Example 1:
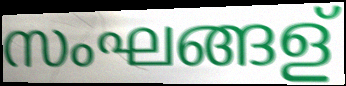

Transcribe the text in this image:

സംഘങ്ങള്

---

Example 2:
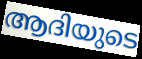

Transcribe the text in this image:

ആദിയുടെ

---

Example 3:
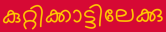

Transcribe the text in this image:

കുറ്റിക്കാട്ടിലേക്കു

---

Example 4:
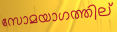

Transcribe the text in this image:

സോമയാഗത്തില്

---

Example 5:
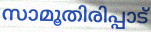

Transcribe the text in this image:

സാമൂതിരിപ്പാട്